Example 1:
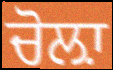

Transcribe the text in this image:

ਚੋਲ਼ਾ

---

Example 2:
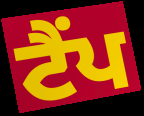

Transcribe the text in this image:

ਟੈਂਪ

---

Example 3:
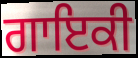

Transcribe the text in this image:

ਗਾਇਕੀ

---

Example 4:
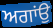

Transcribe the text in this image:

ਅਗਾਂਉ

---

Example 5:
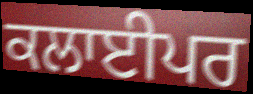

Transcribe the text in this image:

ਕਲਾਈਪਰ